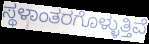
ಸ್ಥಳಾಂತರಗೊಳ್ಳುತ್ತಿವೆ